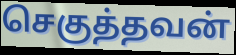
செகுத்தவன்